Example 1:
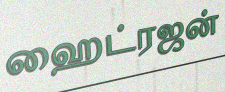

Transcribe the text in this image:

ஹைட்ரஜன்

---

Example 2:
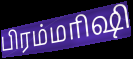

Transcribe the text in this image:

பிரம்மரிஷி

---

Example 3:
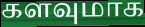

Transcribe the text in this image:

களவுமாக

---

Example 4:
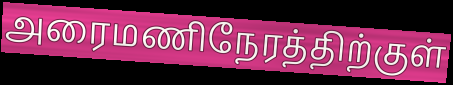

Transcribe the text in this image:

அரைமணிநேரத்திற்குள்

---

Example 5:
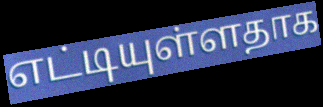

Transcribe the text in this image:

எட்டியுள்ளதாக